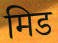
मिड